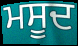
ਮਸੂਦ